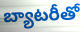
బ్యాటరీతో